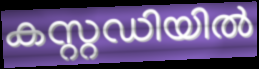
കസ്റ്റഡിയിൽ